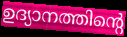
ഉദ്യാനത്തിന്റെ